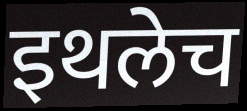
इथलेच